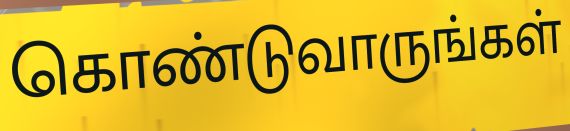
கொண்டுவாருங்கள்